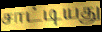
சாட்டியது